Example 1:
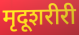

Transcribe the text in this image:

मृदूशरीरी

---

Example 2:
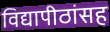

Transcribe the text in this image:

विद्यापीठांसह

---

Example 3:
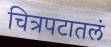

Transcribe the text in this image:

चित्रपटातलं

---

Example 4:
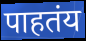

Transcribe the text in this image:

पाहतंय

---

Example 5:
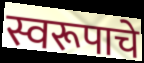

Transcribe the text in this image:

स्वरूपाचे